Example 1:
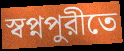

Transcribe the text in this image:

স্বপ্নপুরীতে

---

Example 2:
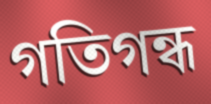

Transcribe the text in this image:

গতিগন্ধ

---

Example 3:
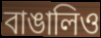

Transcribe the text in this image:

বাঙালিও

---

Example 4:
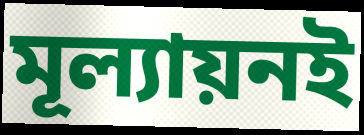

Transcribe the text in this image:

মূল্যায়নই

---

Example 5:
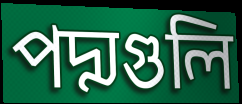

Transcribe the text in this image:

পদ্মগুলি